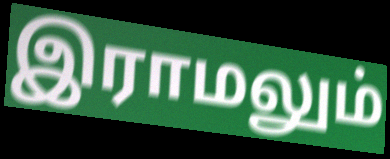
இராமலும்